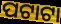
ପଟାଟା